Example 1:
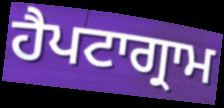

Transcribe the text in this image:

ਹੈਪਟਾਗ੍ਰਾਮ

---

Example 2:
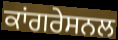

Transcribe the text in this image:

ਕਾਂਗਰੇਸਨਲ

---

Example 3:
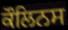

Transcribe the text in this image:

ਕੌਲਿਨਸ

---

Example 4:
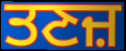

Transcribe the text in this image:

ਤਣਜ਼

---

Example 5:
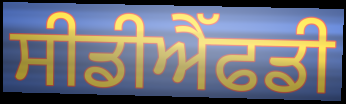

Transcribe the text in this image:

ਸੀਡੀਐੱਫਡੀ